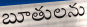
బూతులను